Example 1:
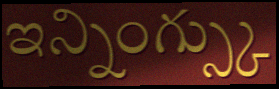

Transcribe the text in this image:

ఇన్నింగ్స్కు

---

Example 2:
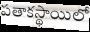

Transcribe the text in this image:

పతాకస్థాయిలో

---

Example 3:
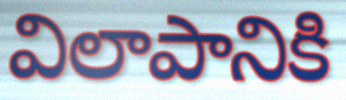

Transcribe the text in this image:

విలాపానికి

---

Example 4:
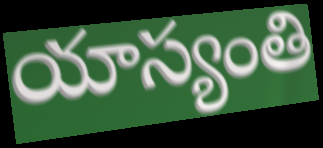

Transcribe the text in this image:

యాస్యంతి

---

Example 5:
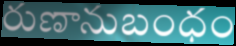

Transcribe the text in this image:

రుణానుబంధం